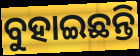
ବୁହାଇଛନ୍ତି